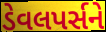
ડેવલપર્સને